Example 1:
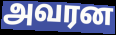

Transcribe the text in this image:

அவரன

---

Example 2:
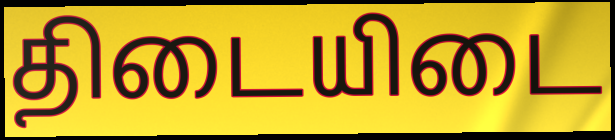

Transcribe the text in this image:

திடையிடை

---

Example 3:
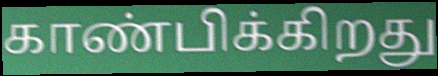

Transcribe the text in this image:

காண்பிக்கிறது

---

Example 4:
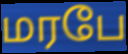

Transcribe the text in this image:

மரபே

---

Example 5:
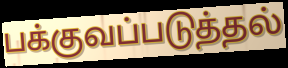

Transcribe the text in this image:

பக்குவப்படுத்தல்